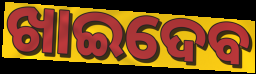
ଖାଇଦେବ